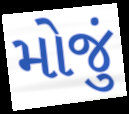
મોજું